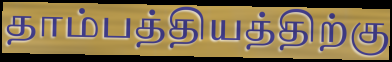
தாம்பத்தியத்திற்கு